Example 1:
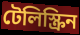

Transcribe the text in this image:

টেলিস্ক্রিন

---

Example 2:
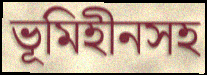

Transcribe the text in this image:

ভূমিহীনসহ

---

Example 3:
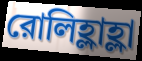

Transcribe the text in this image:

রোলিহ্লাহ্লা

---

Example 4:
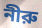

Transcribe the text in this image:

নীরু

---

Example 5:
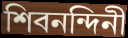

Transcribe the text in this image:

শিবনন্দিনী